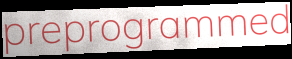
preprogrammed